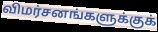
விமர்சனங்களுக்குக்